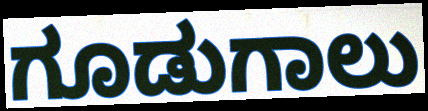
ಗೂಡುಗಾಲು